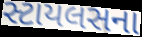
સ્ટાયલસના